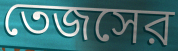
তেজসের